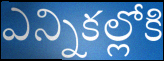
ఎన్నికల్లోకి